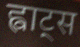
ह्वाट्स